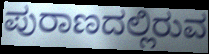
ಪುರಾಣದಲ್ಲಿರುವ